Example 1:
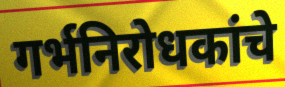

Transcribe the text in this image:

गर्भनिरोधकांचे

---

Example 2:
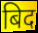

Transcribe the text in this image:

बिद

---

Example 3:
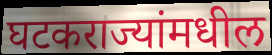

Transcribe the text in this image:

घटकराज्यांमधील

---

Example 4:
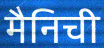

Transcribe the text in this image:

मैनिची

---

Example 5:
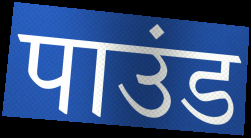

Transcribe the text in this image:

पाउंड